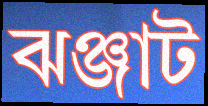
ঝঞ্জাট